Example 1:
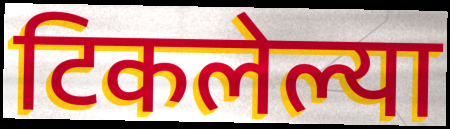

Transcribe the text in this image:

टिकलेल्या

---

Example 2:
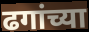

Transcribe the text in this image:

ढगांच्या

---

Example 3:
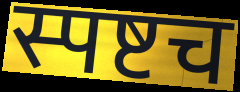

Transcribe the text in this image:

स्पष्टच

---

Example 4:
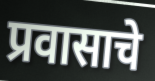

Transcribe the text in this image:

प्रवासाचे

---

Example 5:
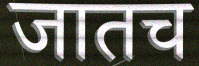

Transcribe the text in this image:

जातच